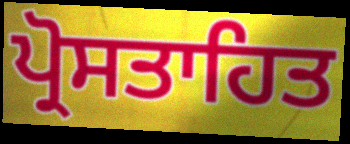
ਪ੍ਰੋਸਤਾਹਿਤ